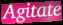
Agitate